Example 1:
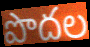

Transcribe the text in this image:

పొదల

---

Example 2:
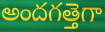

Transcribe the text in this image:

అందగత్తెగా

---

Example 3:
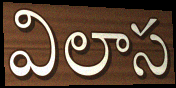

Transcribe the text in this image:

విలాస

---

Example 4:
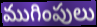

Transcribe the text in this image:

ముగింపులు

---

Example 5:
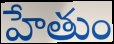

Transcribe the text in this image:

హేతుం